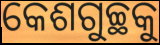
କେଶଗୁଚ୍ଛକୁ